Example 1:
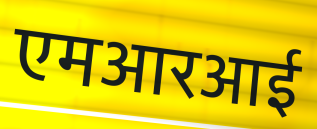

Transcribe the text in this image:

एमआरआई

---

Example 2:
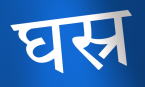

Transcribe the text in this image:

घस्र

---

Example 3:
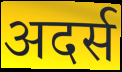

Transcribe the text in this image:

अदर्स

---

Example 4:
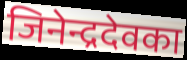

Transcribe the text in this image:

जिनेन्द्रदेवका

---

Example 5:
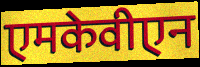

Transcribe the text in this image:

एमकेवीएन